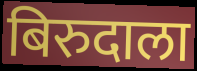
बिरुदाला